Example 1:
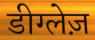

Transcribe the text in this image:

डीग्लेज़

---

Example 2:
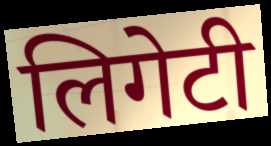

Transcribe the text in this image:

लिगेटी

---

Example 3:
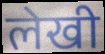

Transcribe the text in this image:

लेखी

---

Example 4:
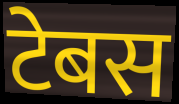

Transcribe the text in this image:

टेबस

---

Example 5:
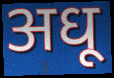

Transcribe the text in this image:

अधू